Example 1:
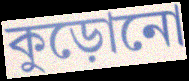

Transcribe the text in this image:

কুড়োনো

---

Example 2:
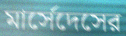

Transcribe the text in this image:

মার্সেদেসের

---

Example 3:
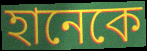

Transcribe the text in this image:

হানেকে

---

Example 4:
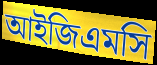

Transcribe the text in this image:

আইজিএমসি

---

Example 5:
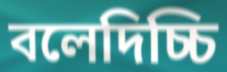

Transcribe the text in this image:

বলেদিচ্চি